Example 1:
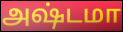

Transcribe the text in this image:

அஷ்டமா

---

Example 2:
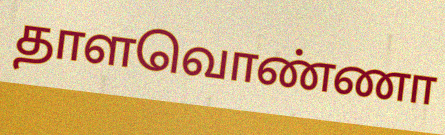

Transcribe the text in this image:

தாளவொண்ணா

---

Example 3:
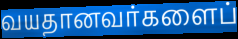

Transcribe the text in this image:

வயதானவர்களைப்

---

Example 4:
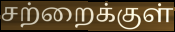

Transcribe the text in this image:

சற்றைக்குள்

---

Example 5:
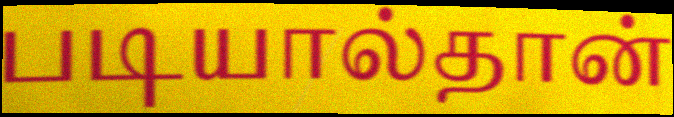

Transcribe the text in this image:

படியால்தான்